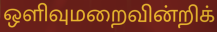
ஒளிவுமறைவின்றிக்